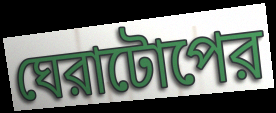
ঘেরাটোপের